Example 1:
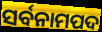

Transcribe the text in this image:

ସର୍ବନାମପଦ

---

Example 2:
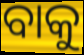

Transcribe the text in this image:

ବାକୁ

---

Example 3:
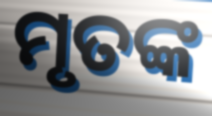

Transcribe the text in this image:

ମୃତଙ୍କ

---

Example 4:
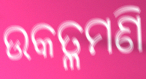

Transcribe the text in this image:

ଉକତ୍ଳମଣି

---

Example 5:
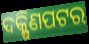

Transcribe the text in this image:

ଦକ୍ଷିଣପଟର